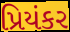
પ્રિયંકર